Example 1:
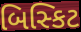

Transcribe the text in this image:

બિસ્કિટ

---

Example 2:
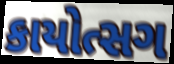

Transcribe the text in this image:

કાયોત્સગ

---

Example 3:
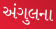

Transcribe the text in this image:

અંગુલના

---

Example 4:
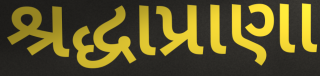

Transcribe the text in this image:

શ્રદ્ધાપ્રાણા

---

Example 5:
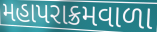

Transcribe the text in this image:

મહાપરાક્રમવાળા